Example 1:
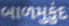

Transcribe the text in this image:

બાળમુકુંદ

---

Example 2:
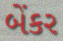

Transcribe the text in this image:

બેંકર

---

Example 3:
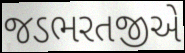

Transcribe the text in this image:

જડભરતજીએ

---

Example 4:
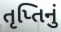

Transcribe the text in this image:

તૃપ્તિનું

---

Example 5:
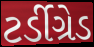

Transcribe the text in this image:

ટર્ડીગ્રેડ